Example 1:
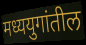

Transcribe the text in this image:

मध्ययुगांतील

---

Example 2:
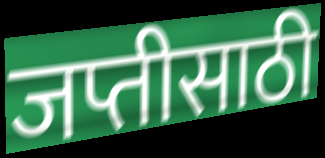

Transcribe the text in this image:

जप्तीसाठी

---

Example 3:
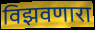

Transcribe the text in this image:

विझवणारा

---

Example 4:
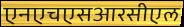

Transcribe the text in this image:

एनएचएसआरसीएल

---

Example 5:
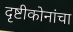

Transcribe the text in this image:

दृष्टीकोनांचा